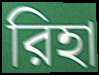
রিহা